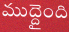
ముద్దైంది